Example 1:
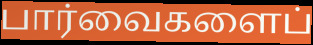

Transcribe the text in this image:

பார்வைகளைப்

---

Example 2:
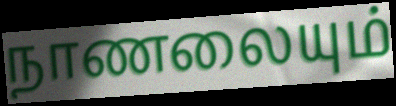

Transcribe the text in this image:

நாணலையும்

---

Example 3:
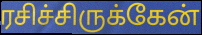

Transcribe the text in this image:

ரசிச்சிருக்கேன்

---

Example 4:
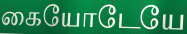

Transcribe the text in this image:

கையோடேயே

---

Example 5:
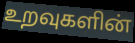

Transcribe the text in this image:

உறவுகளின்